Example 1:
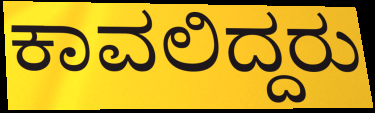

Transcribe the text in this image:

ಕಾವಲಿದ್ದರು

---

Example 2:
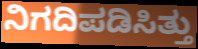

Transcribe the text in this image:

ನಿಗದಿಪಡಿಸಿತ್ತು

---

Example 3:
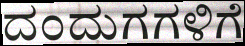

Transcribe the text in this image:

ದಂದುಗಗಳಿಗೆ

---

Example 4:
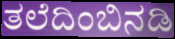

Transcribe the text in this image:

ತಲೆದಿಂಬಿನಡಿ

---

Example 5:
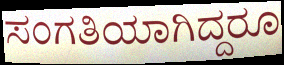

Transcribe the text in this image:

ಸಂಗತಿಯಾಗಿದ್ದರೂ